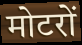
मोटरों